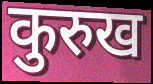
कुरुख